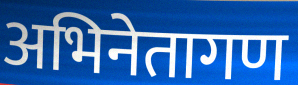
अभिनेतागण